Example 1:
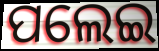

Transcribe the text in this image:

ପଲେଇ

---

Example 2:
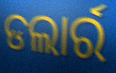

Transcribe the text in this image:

ଡଲାର୍ର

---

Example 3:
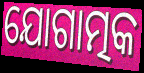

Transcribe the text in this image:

ଯୋଗାତ୍ମକ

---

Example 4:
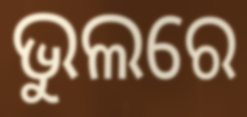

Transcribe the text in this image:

ଭୁଲରେ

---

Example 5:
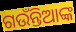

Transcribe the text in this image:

ଗଉଁନ୍ତିଆଙ୍କ